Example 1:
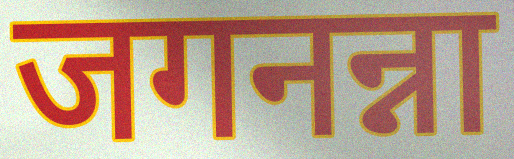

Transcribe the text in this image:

जगनन्ना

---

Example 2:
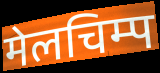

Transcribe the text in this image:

मेलचिम्प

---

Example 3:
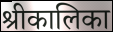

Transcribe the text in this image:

श्रीकालिका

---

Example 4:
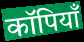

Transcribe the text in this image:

कॉपियाँ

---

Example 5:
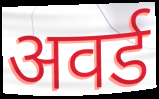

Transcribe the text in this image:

अवर्ड